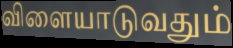
விளையாடுவதும்